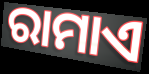
ରାମାଏ